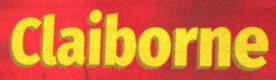
Claiborne